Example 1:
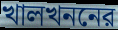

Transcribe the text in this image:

খালখননের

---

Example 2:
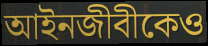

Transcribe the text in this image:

আইনজীবীকেও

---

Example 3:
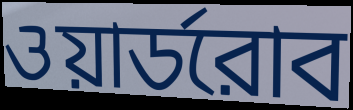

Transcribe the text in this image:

ওয়ার্ডরোব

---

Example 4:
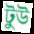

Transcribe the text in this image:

টুউ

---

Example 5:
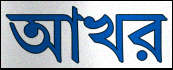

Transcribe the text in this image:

আখর